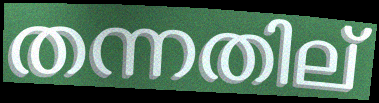
തന്നതില്